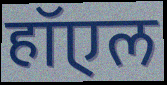
हॉएल